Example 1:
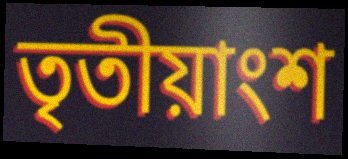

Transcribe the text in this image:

তৃতীয়াংশ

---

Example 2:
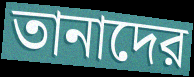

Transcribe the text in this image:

তানাদের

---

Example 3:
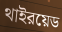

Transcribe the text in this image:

থাইরয়েড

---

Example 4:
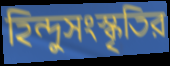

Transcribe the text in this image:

হিন্দুসংস্কৃতির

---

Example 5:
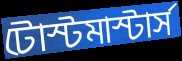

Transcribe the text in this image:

টোস্টমাস্টার্স